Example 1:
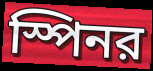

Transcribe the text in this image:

স্পিনর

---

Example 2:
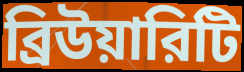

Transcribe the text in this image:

ব্রিউয়ারিটি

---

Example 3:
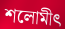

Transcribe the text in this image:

শলোমীৎ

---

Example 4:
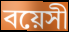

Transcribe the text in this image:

বয়েসী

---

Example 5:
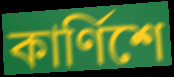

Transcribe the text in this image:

কার্ণিশে